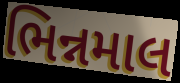
ભિન્નમાલ